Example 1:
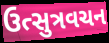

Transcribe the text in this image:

ઉત્સુત્રવચન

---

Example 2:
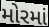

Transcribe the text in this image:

મોરમાં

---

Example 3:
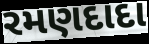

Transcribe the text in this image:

રમણદાદા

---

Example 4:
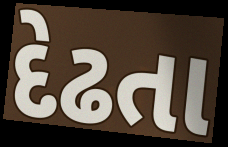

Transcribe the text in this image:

દેઢતા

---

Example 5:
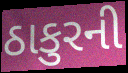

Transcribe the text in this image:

ઠાકુરની